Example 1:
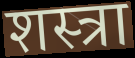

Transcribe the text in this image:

शस्त्रा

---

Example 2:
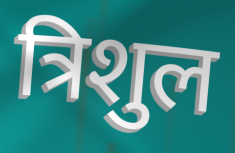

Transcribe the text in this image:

त्रिशुल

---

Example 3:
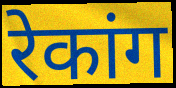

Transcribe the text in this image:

रेकांग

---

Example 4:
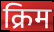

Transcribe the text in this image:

क्रिम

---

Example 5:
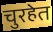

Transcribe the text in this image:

चुरहेत